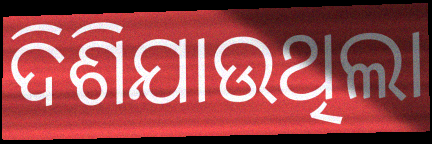
ଦିଶିଯାଉଥିଲା